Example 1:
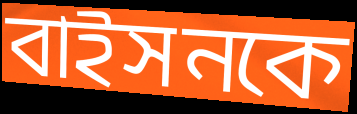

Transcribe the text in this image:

বাইসনকে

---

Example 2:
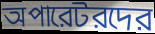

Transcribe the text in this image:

অপারেটরদের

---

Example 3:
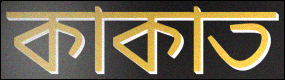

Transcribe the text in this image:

কাকাত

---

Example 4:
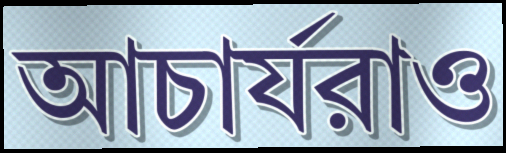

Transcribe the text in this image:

আচার্যরাও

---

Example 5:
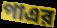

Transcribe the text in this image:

পাএর